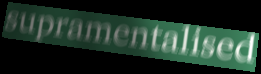
supramentalised